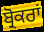
ਬ੍ਰੋਕਰਾਂ